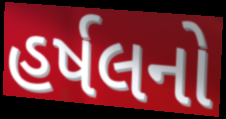
હર્ષલનો